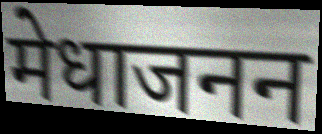
मेधाजनन